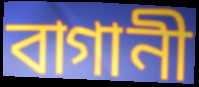
বাগানী